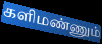
களிமண்ணும்